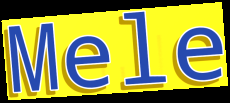
Mele